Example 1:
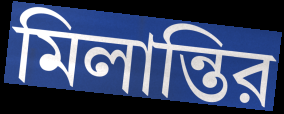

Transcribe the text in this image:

মিলান্তির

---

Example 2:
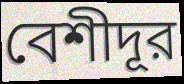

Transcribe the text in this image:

বেশীদূর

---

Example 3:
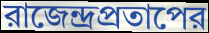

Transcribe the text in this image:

রাজেন্দ্রপ্রতাপের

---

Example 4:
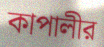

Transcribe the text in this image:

কাপালীর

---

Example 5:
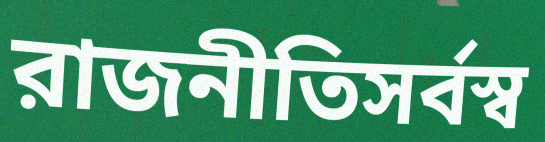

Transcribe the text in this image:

রাজনীতিসর্বস্ব